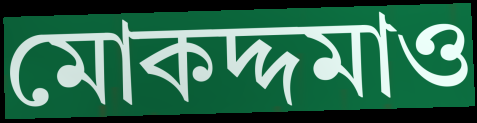
মোকদ্দমাও